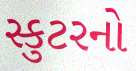
સ્કુટરનો